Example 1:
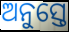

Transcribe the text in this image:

ଅନୁସ୍ତେ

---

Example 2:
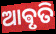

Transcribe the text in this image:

ଆଵୃତି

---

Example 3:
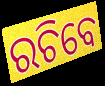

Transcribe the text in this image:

ରଚିବେ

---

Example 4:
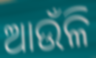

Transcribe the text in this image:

ଆଉଁଳି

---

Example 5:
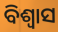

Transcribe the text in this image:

ବିଶ୍ଵାସ